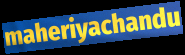
maheriyachandu